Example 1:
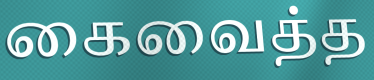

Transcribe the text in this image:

கைவைத்த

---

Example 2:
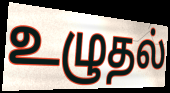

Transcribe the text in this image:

உழுதல்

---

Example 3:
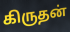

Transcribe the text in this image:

கிருதன்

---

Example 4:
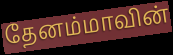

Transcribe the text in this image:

தேனம்மாவின்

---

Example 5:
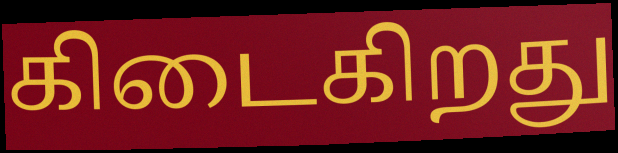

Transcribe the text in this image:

கிடைகிறது